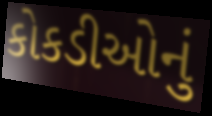
કોકડીઓનું